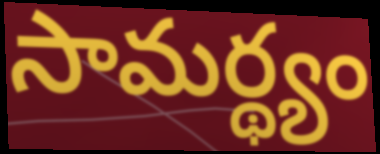
సామర్థ్యం